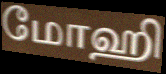
மோஹி